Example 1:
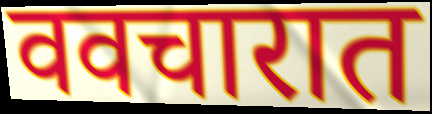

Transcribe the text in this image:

ववचारात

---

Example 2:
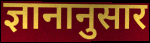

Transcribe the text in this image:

ज्ञानानुसार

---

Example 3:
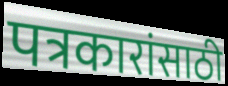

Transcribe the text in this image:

पत्रकारांसाठी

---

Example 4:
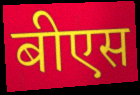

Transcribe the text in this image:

बीएस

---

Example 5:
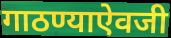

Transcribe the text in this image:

गाठण्याऐवजी